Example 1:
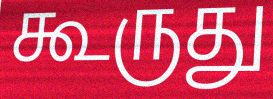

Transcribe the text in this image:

கூருது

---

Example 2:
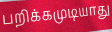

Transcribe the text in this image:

பறிக்கமுடியாது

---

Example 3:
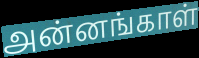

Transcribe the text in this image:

அன்னங்காள்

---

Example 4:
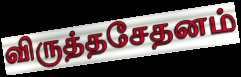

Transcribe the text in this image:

விருத்தசேதனம்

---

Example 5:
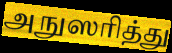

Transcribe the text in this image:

அநுஸரித்து